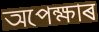
অপেক্ষাৰ